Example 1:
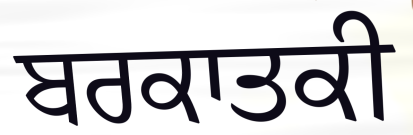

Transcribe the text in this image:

ਬਰਕਾਤਕੀ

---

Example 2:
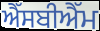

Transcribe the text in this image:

ਐੱਸਬੀਐੱਮ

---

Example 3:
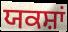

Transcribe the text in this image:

ਯਕਸ਼ਾਂ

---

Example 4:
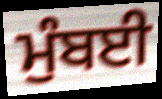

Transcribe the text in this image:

ਮੁੰਬਈ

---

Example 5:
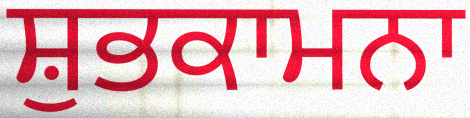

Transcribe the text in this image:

ਸ਼ੁਭਕਾਮਨਾ